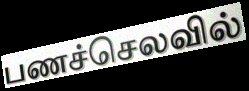
பணச்செலவில்